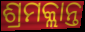
ଶ୍ରମକ୍ଲାନ୍ତ